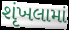
શૃંખલામાં